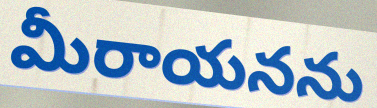
మీరాయనను